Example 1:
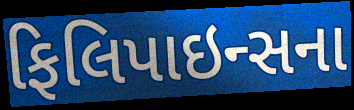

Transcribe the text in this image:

ફિલિપાઇન્સના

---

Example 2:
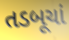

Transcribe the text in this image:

તડબૂચાં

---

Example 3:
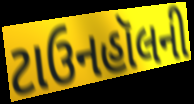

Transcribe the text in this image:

ટાઉનહૉલની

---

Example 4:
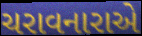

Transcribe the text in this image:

ચરાવનારાએ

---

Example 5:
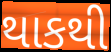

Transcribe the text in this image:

થાકથી